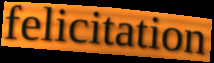
felicitation